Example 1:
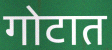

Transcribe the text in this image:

गोटात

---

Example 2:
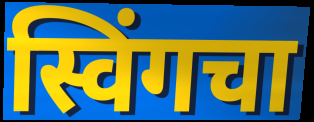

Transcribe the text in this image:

स्विंगचा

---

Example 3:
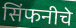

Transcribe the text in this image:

सिंफनीचे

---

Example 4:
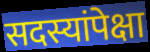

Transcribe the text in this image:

सदस्यांपेक्षा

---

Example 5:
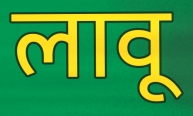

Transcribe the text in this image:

लावू